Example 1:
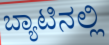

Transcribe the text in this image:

ಬ್ಯಾಟಿನಲ್ಲಿ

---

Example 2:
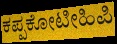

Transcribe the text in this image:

ಕಪ್ಪಕೋಟೀಹಿಪಿ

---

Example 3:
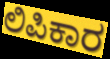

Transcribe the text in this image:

ಲಿಪಿಕಾರ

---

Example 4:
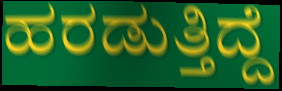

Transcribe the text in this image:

ಹರಡುತ್ತಿದ್ದೆ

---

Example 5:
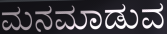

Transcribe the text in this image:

ಮನಮಾಡುವ